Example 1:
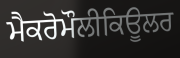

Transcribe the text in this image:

ਮੈਕਰੋਮੌਲੀਕਿਊਲਰ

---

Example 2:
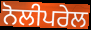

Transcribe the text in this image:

ਨੋਲੀਪਰੇਲ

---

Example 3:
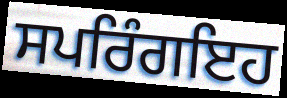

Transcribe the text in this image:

ਸਪਰਿੰਗਇਹ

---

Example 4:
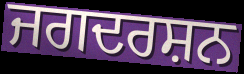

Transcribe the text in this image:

ਜਗਦਰਸ਼ਨ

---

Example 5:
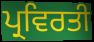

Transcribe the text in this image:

ਪ੍ਰਵਿਰਤੀ